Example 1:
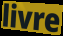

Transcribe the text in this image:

livre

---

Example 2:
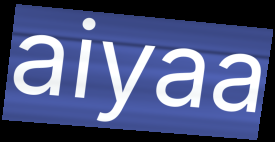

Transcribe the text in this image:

aiyaa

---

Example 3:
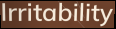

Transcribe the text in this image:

Irritability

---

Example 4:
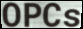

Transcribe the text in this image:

OPCs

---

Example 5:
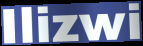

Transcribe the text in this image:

Ilizwi